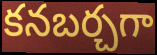
కనబర్చగా